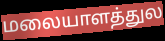
மலையாளத்துல